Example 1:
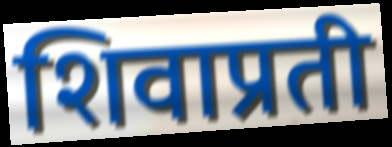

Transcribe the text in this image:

शिवाप्रती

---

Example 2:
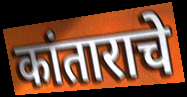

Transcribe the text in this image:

कांताराचे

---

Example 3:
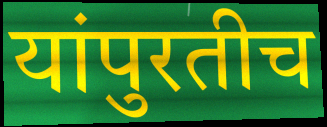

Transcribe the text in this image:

यांपुरतीच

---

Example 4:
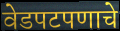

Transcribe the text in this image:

वेडपटपणाचे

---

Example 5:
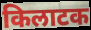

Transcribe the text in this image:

किलाटक